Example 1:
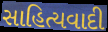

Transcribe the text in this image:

સાહિત્યવાદી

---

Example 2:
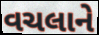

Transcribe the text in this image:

વચલાને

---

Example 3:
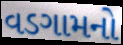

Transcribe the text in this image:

વડગામનો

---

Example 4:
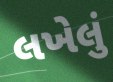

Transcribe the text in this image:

લખેલું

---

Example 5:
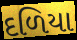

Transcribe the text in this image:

દળિયા